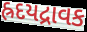
હ્રદયદ્રાવક